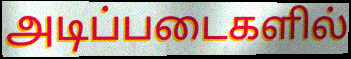
அடிப்படைகளில்